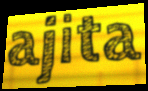
ajita